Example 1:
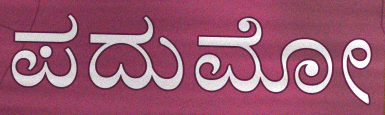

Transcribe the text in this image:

ಪದುಮೋ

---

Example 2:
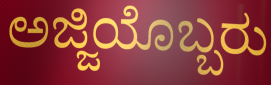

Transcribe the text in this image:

ಅಜ್ಜಿಯೊಬ್ಬರು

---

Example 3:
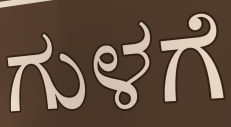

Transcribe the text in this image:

ಗುಳಗೆ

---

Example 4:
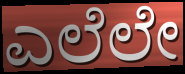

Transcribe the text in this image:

ಎಲೆಲೇ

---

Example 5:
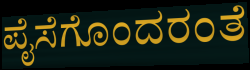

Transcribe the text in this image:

ಪೈಸೆಗೊಂದರಂತೆ